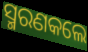
ସ୍ମରଣକଲେ